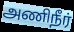
அணிநீர்